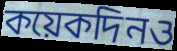
কয়েকদিনও